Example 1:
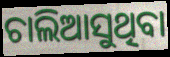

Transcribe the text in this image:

ଚାଲିଆସୁଥିବା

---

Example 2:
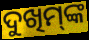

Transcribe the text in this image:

ଦୁଖିମ୍‌ଙ୍କ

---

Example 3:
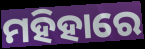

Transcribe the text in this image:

ମହିହାରେ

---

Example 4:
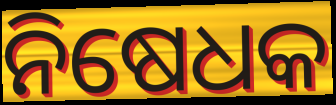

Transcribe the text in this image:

ନିଷେଧକ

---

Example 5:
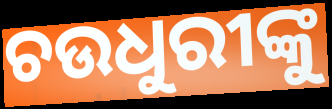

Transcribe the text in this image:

ଚଉଧୁରୀଙ୍କୁ